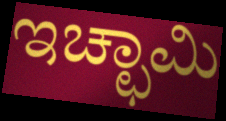
ಇಚ್ಛಾಮಿ